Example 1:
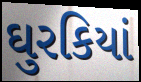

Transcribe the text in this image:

ઘુરકિયાં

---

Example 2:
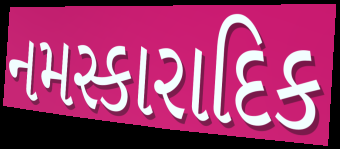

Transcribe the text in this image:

નમસ્કારાદિક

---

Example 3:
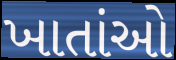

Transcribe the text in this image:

ખાતાંઓ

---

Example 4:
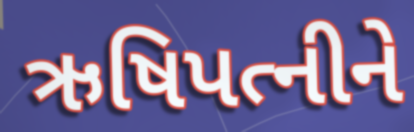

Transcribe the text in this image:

ઋષિપત્નીને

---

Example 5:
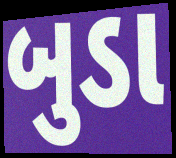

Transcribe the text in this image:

બુડા